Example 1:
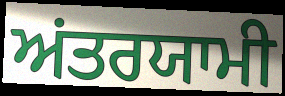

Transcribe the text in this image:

ਅਂਤਰਯਾਮੀ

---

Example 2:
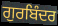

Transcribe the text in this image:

ਗੁਰਬਿੰਦਰ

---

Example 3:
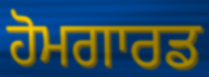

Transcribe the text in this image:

ਹੋਮਗਾਰਡ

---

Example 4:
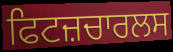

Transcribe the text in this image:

ਫਿਟਜ਼ਚਾਰਲਸ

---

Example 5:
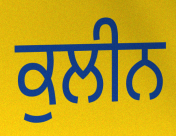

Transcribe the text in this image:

ਕੁਲੀਨ